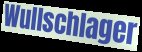
Wullschlager